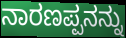
ನಾರಣಪ್ಪನನ್ನು